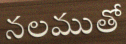
నలముతో